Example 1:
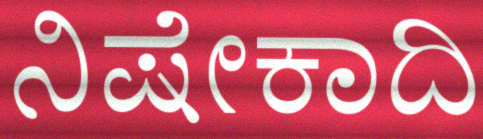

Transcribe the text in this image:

ನಿಷೇಕಾದಿ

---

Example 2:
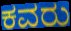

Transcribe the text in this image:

ಕವರು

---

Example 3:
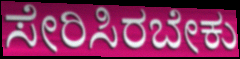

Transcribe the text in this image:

ಸೇರಿಸಿರಬೇಕು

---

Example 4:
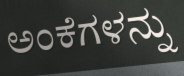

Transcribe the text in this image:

ಅಂಕೆಗಳನ್ನು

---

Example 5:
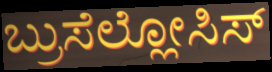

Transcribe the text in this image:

ಬ್ರುಸೆಲ್ಲೋಸಿಸ್